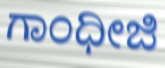
ಗಾಂಧೀಜಿ